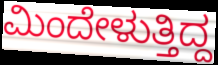
ಮಿಂದೇಳುತ್ತಿದ್ದ